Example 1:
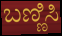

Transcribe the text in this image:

ಬಣ್ಣಿಸಿ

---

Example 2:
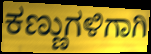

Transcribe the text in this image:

ಕಣ್ಣುಗಳಿಗಾಗಿ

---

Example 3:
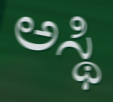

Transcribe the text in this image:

ಅಸ್ಥಿ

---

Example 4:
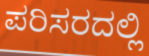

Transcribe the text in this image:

ಪರಿಸರದಲ್ಲಿ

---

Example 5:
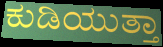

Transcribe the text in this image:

ಕುಡಿಯುತ್ತಾ